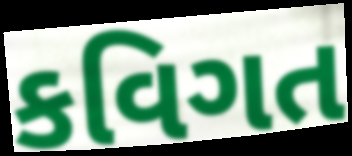
કવિગત